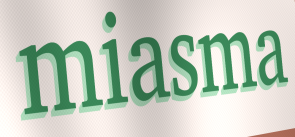
miasma